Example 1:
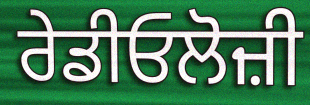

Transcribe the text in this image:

ਰੇਡੀਓਲੋਜ਼ੀ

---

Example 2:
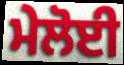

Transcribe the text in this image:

ਮੇਲੋਈ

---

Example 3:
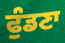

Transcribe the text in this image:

ਫੁੰਡਣਾ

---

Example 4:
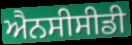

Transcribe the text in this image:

ਐਨਸੀਸੀਡੀ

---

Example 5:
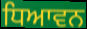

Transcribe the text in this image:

ਧਿਆਵਨ